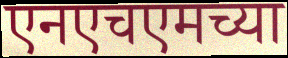
एनएचएमच्या